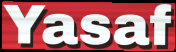
Yasaf